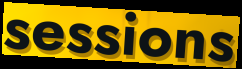
sessions